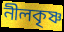
নীলকৃষ্ণ